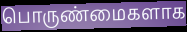
பொருண்மைகளாக